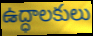
ఉద్ధాలకులు